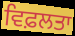
ਵਿਫ਼ਲਤਾ